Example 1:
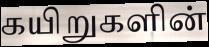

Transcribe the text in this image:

கயிறுகளின்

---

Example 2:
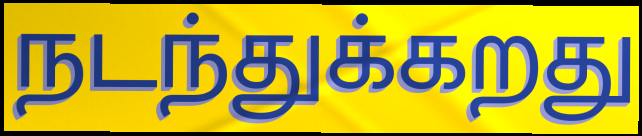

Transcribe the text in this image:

நடந்துக்கறது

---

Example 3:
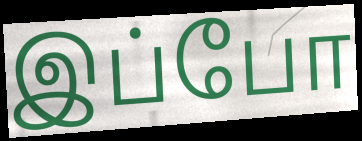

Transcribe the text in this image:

இப்போ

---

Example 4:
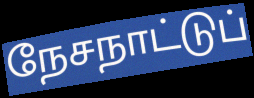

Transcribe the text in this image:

நேசநாட்டுப்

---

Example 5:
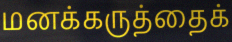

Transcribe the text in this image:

மனக்கருத்தைக்